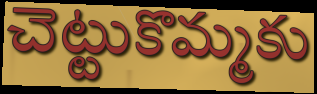
చెట్టుకొమ్మకు